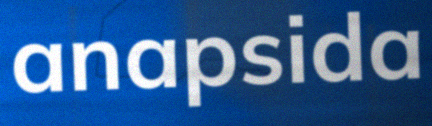
anapsida